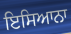
ਇਸਿਆਨਾ